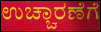
ಉಚ್ಚಾರಣೆಗೆ